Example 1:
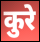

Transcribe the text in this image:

कुरे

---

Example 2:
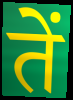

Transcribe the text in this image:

तें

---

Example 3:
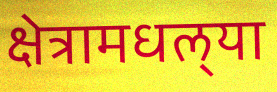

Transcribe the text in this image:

क्षेत्रामधल्या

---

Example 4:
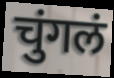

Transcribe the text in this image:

चुंगलं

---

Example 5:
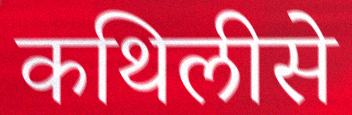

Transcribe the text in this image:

कथिलीसे